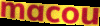
macou